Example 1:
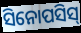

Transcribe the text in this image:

ସିନୋପସିସ୍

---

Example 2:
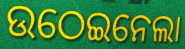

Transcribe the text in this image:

ଉଠେଇନେଲା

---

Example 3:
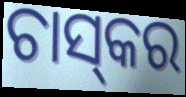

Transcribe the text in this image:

ଚାସ୍‌କର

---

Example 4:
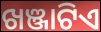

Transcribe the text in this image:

ଖଞ୍ଜାଟିଏ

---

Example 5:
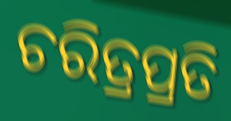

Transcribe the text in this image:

ଚରିତ୍ରପ୍ରତି